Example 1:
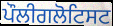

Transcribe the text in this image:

ਪੌਲੀਗਲੋਟਿਸਟ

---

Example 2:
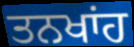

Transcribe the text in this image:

ਤਨਖਾਂਹ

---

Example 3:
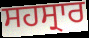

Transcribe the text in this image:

ਸਹਸ੍ਰਾਰ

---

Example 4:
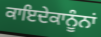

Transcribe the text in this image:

ਕਾਇਦੇਕਾਨੂੰਨਾਂ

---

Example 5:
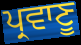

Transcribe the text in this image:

ਪ੍ਰਵਾਣੂ